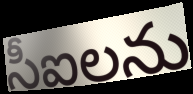
సీఐలను